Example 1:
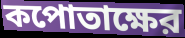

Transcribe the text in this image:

কপোতাক্ষের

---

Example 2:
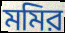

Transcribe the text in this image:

মমির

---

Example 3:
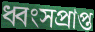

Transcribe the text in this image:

ধ্বংসপ্রাপ্ত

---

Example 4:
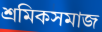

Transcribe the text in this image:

শ্রমিকসমাজ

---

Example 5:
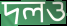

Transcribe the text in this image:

দলও